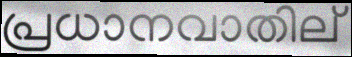
പ്രധാനവാതില്